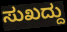
ಸುಖದ್ದು